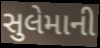
સુલેમાની